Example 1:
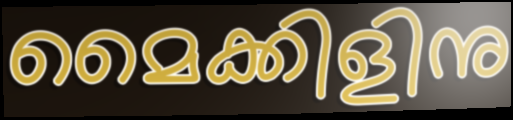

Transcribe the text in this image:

മൈക്കിളിനു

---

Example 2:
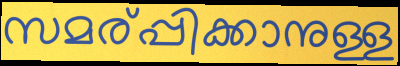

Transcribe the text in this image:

സമര്പ്പിക്കാനുള്ള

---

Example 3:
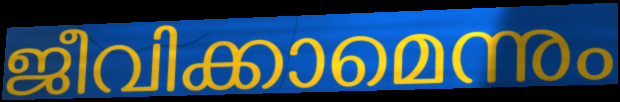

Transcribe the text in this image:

ജീവിക്കാമെന്നും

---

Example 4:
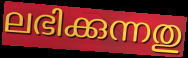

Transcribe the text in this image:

ലഭിക്കുന്നതു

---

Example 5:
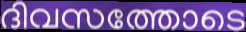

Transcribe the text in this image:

ദിവസത്തോടെ